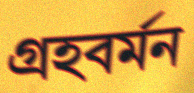
গ্রহবর্মন